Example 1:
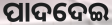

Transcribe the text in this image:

ପାଦଦେଇ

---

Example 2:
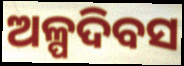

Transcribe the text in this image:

ଅଳ୍ପଦିବସ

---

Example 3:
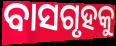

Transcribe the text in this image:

ବାସଗୃହକୁ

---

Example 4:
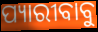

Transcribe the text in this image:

ପ୍ୟାରୀବାବୁ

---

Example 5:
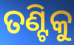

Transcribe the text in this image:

ତଣ୍ଟିକୁ